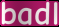
badl